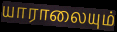
யாராலையும்